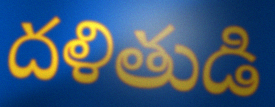
దళితుడి